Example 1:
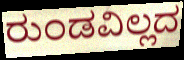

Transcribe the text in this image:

ರುಂಡವಿಲ್ಲದ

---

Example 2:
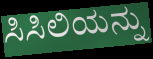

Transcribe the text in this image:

ಸಿಸಿಲಿಯನ್ನು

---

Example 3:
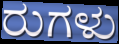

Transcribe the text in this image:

ರುಗಳು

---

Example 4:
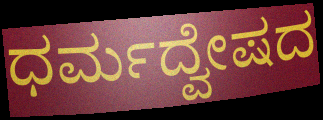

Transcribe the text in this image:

ಧರ್ಮದ್ವೇಷದ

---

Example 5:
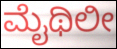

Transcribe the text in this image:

ಮೈಥಿಲೀ